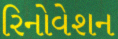
રિનોવેશન